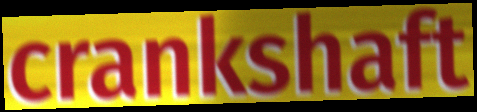
crankshaft